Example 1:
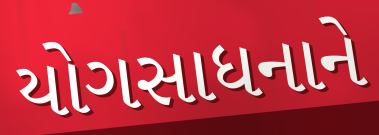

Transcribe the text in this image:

યોગસાધનાને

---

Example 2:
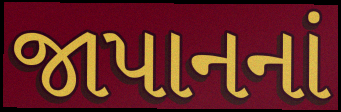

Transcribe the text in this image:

જાપાનનાં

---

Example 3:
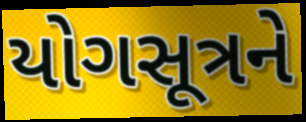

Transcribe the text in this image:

યોગસૂત્રને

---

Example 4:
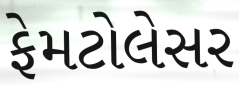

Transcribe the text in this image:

ફેમટોલેસર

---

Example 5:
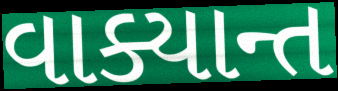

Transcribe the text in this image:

વાક્યાન્ત